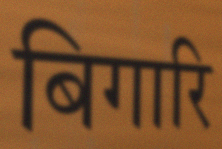
बिगारि